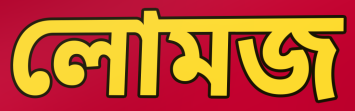
লোমজ